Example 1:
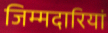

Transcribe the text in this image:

जिम्मदारियां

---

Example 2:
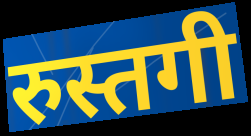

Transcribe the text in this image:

रुस्तगी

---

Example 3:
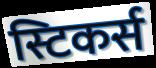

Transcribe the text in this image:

स्टिकर्स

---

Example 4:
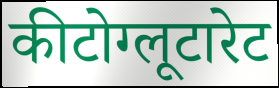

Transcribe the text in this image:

कीटोग्लूटारेट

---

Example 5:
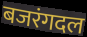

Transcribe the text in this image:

बजरंगदल